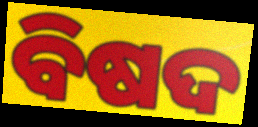
ବିଷଦ